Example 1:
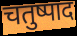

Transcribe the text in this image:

चतुष्पाद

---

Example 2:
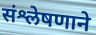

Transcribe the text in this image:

संश्लेषणाने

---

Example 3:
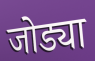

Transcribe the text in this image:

जोड्या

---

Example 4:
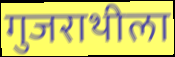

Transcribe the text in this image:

गुजराथीला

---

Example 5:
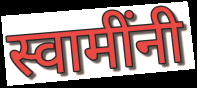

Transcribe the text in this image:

स्वामींनी